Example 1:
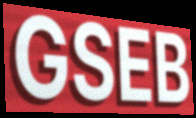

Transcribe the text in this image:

GSEB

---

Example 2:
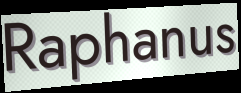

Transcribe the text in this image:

Raphanus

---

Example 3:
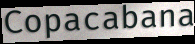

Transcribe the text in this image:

Copacabana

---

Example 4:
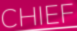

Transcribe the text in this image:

CHIEF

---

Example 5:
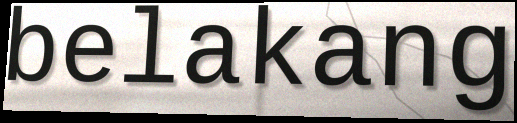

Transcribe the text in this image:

belakang